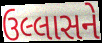
ઉલ્લાસને